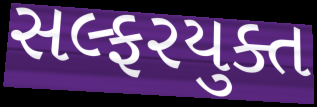
સલ્ફરયુક્ત